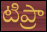
టిప్రా